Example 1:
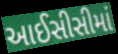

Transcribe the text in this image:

આઈસીસીમાં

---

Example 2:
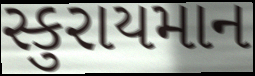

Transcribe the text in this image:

સ્કુરાયમાન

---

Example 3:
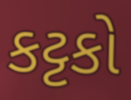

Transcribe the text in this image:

કટ્ટકો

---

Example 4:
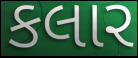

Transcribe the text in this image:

કલાર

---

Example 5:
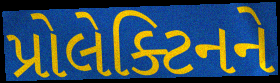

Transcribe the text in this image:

પ્રોલેક્ટિનને